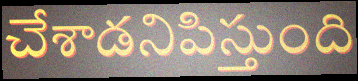
చేశాడనిపిస్తుంది